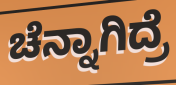
ಚೆನ್ನಾಗಿದ್ರೆ